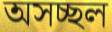
অসচ্ছল